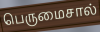
பெருமைசால்